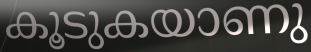
കൂടുകയാണു